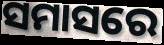
ସମାସରେ